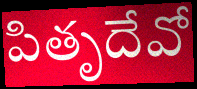
పితృదేవో